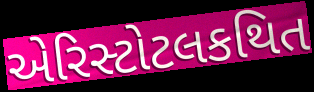
એરિસ્ટોટલકથિત